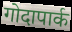
गोदापार्क